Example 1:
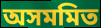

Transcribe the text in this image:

অসমমিত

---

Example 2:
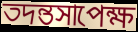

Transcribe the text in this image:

তদন্তসাপেক্ষ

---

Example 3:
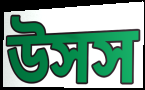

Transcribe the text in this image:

উসস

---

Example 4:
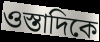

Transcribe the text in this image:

ওস্তাদিকে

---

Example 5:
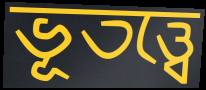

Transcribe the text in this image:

ভূতত্ত্বে